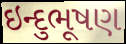
ઇન્દુભૂષણ